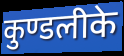
कुण्डलीके